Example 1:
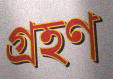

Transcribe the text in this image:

গ্রহণ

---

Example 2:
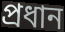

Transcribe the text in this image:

প্রধান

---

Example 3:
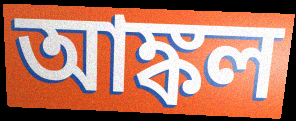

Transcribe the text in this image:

আঙ্কল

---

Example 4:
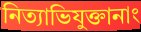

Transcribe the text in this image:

নিত্যাভিযুক্তানাং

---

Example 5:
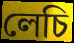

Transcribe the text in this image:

লেচি